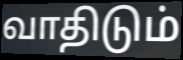
வாதிடும்